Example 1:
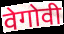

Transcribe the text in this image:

वेगोवी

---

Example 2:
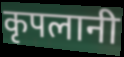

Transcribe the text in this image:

कृपलानी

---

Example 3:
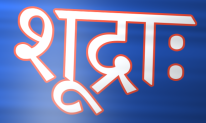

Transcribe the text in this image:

शूद्राः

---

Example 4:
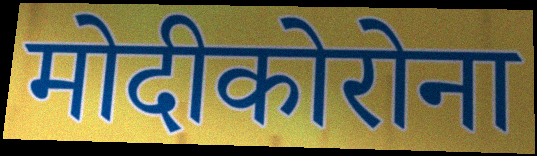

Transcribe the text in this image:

मोदीकोरोना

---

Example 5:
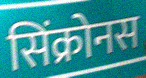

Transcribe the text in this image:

सिंक्रोनस